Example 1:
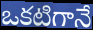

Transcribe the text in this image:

ఒకటిగానే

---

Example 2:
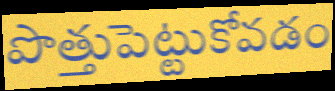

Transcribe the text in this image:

పొత్తుపెట్టుకోవడం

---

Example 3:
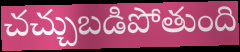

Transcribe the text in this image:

చచ్చుబడిపోతుంది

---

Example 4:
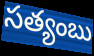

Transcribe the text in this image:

సత్యంబు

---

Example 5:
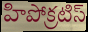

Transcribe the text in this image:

హిపోక్రటిస్